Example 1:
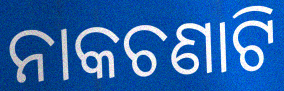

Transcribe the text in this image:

ନାକଚଣାଟି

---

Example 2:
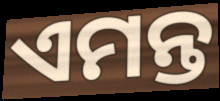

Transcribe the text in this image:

ଏମନ୍ତ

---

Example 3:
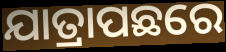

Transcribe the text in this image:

ଯାତ୍ରାପଛରେ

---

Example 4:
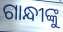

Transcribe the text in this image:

ଗାନ୍ଧୀଙ୍କୁ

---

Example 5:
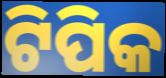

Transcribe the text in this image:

ଟିପିକ